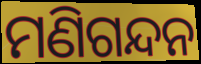
ମଣିଗନ୍ଦନ